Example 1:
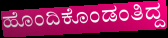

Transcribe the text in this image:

ಹೊಂದಿಕೊಂಡಂತಿದ್ದ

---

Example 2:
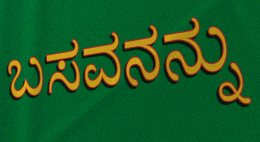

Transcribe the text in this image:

ಬಸವನನ್ನು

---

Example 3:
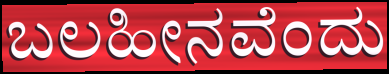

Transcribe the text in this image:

ಬಲಹೀನವೆಂದು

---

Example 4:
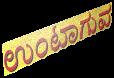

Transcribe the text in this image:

ಉಂಟಾಗುವ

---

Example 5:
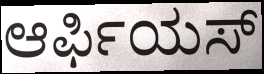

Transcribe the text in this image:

ಆರ್ಫಿಯಸ್